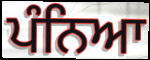
ਪੰਨਿਆ